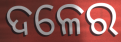
ଦଳେର